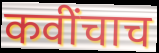
कवींचाच